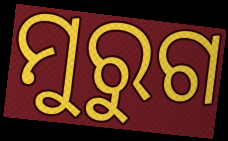
ମୁରୁଗ